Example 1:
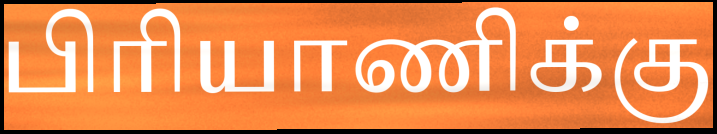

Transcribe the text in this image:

பிரியாணிக்கு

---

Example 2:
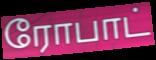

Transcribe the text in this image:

ரோபாட்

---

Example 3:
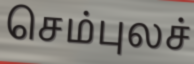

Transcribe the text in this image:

செம்புலச்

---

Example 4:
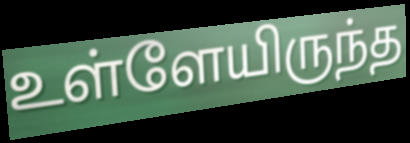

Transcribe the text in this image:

உள்ளேயிருந்த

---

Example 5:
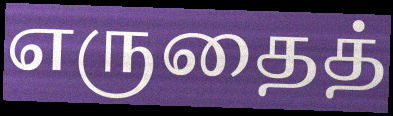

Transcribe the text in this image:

எருதைத்